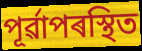
পূৰ্ৱাপৰস্থিত